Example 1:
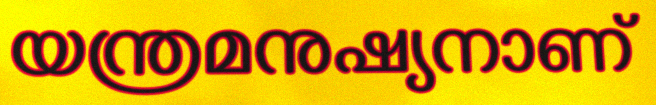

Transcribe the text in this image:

യന്ത്രമനുഷ്യനാണ്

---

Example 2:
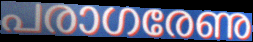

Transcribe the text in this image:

പരാഗരേണു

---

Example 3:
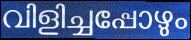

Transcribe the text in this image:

വിളിച്ചപ്പോഴും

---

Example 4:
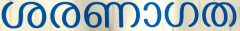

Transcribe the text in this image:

ശരണാഗത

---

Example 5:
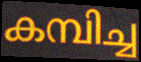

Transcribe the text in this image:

കമ്പിച്ച